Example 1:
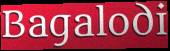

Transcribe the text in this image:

Bagalodi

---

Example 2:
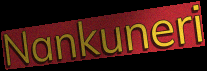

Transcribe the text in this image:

Nankuneri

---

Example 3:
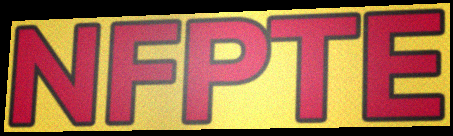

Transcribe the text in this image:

NFPTE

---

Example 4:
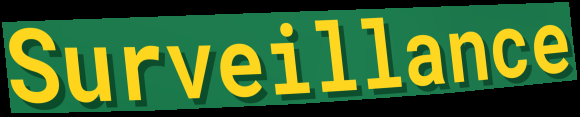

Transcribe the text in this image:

Surveillance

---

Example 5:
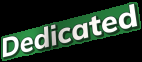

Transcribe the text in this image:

Dedicated